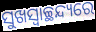
ସୁଖସ୍ଵାଚ୍ଛନ୍ଦ୍ୟରେ